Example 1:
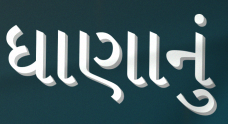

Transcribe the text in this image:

ધાણાનું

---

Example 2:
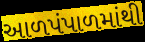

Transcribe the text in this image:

આળપંપાળમાંથી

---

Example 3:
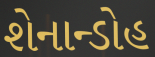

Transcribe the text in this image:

શેનાન્ડોહ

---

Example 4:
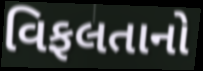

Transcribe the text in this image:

વિફલતાનો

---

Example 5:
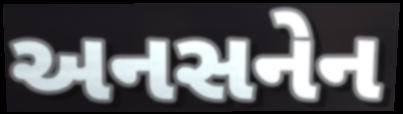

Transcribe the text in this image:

અનસનેન